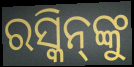
ରସ୍କିନ୍‌ଙ୍କୁ